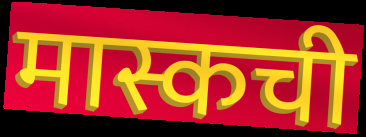
मास्कची